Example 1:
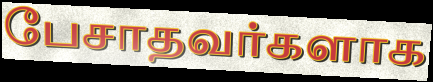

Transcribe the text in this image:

பேசாதவர்களாக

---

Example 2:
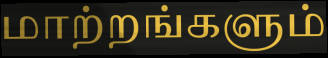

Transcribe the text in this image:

மாற்றங்களும்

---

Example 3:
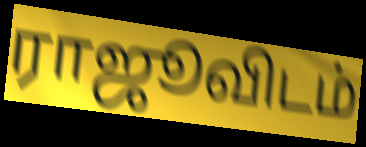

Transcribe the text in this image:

ராஜூவிடம்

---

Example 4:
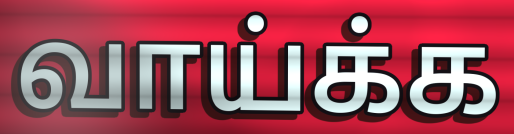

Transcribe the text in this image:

வாய்க்க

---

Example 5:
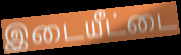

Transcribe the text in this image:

இடையீட்டை